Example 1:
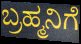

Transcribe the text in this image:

ಬ್ರಹ್ಮನಿಗೆ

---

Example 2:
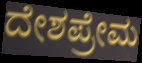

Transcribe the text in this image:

ದೇಶಪ್ರೇಮ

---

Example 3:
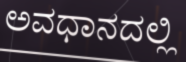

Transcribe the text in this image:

ಅವಧಾನದಲ್ಲಿ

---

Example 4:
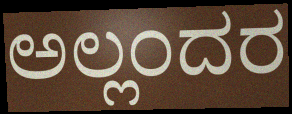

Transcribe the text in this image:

ಅಲ್ಲಂದರ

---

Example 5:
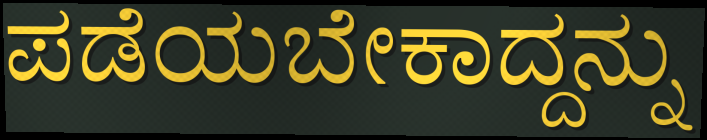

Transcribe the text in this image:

ಪಡೆಯಬೇಕಾದ್ದನ್ನು